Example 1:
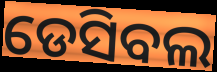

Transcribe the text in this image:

ଡେସିବଲ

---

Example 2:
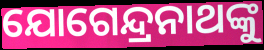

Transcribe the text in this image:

ଯୋଗେନ୍ଦ୍ରନାଥଙ୍କୁ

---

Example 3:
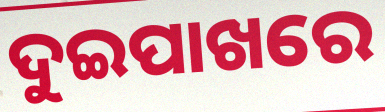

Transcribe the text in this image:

ଦୁଇପାଖରେ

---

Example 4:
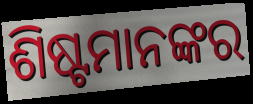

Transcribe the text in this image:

ଶିଷ୍ଟମାନଙ୍କର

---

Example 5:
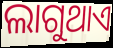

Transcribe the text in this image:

ଲାଗୁଥାଏ